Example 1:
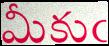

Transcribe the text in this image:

మీకుఁ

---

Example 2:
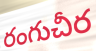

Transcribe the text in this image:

రంగుచీర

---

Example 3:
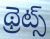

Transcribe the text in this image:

థ్రెట్స్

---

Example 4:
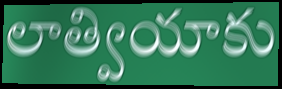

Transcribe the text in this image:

లాత్వియాకు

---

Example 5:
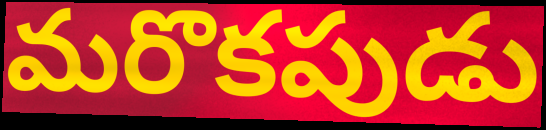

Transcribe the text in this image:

మరొకపుడు